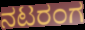
ನಟರಂಗ